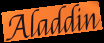
Aladdin